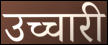
उच्चारी